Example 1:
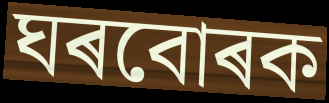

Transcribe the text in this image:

ঘৰবোৰক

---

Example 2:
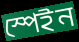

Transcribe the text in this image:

স্পেইন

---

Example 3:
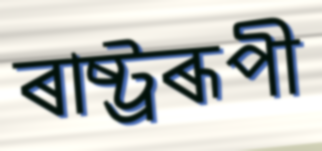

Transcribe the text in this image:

ৰাষ্ট্ৰৰূপী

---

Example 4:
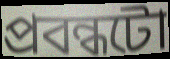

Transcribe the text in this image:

প্ৰবন্ধটো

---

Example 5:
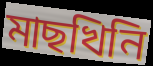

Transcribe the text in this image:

মাছখিনি